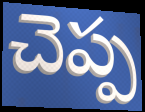
చెప్ప